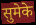
सुमेके